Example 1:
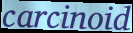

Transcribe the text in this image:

carcinoid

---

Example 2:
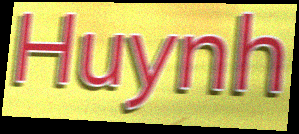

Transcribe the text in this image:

Huynh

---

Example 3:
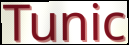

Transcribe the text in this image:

Tunic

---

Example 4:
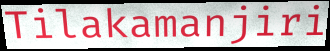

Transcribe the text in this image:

Tilakamanjiri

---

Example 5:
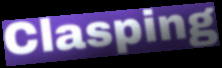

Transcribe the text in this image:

Clasping